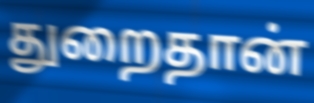
துறைதான்